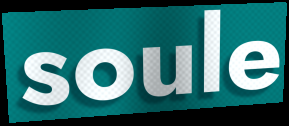
soule